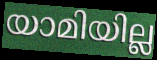
യാമിയില്ല